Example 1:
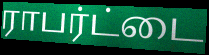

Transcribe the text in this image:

ராபர்ட்டை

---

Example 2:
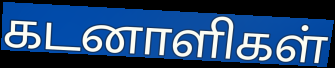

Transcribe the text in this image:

கடனாளிகள்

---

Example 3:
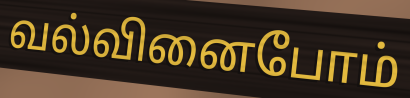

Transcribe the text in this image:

வல்வினைபோம்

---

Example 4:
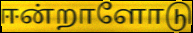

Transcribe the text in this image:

ஈன்றாளோடு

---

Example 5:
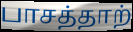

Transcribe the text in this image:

பாசத்தாற்